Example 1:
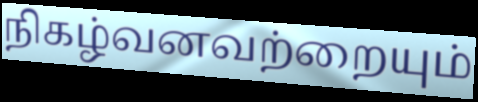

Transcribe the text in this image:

நிகழ்வனவற்றையும்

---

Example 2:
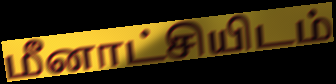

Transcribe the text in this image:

மீனாட்சியிடம்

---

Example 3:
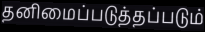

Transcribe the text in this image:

தனிமைப்படுத்தப்படும்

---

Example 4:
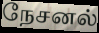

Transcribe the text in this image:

நேசனல்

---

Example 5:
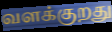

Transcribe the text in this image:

வளக்குறது